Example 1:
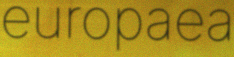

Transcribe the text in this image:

europaea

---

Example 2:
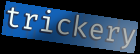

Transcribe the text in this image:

trickery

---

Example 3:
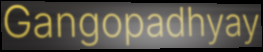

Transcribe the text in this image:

Gangopadhyay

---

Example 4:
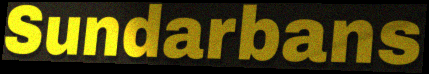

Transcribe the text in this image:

Sundarbans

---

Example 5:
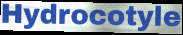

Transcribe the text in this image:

Hydrocotyle